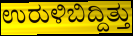
ಉರುಳಿಬಿದ್ದಿತ್ತು